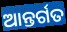
ଆନ୍ତର୍ଗତ